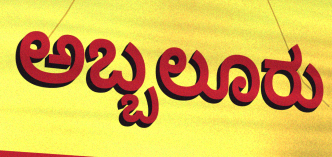
ಅಬ್ಬಲೂರು